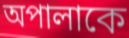
অপালাকে